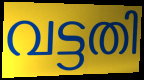
വട്ടതി